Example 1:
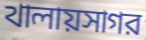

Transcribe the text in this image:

থালায়সাগর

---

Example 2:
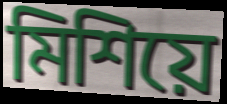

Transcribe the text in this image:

মিশিয়ে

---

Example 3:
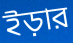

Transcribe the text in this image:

ইড়ার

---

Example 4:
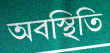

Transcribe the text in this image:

অবস্থিতি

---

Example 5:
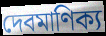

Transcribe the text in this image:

দেবমাণিক্য